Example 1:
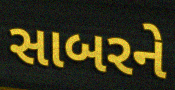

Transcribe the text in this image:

સાબરને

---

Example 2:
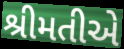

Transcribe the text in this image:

શ્રીમતીએ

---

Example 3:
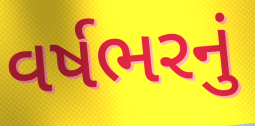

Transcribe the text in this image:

વર્ષભરનું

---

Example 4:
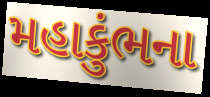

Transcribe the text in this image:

મહાકુંભના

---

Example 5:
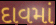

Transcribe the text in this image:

દાવમાં